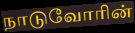
நாடுவோரின்